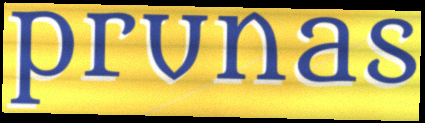
prunas